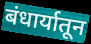
बंधार्यातून